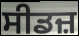
ਸੀਡਜ਼